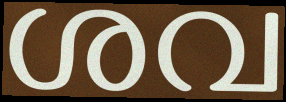
ശവ